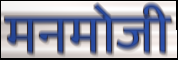
मनमोजी